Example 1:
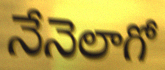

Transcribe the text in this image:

నేనెలాగో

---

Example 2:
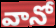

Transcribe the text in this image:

వానో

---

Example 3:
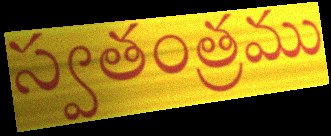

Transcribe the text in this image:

స్వతంత్రము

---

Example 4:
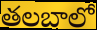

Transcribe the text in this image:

తలబాలో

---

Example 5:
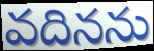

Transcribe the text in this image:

వదినను